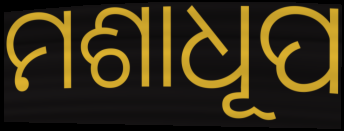
ମଶାଧୂପ